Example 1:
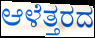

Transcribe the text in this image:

ಆಳೆತ್ತರದ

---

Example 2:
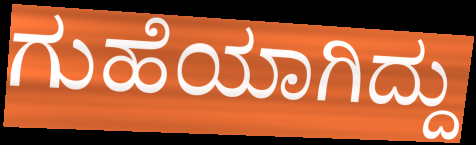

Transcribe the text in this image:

ಗುಹೆಯಾಗಿದ್ದು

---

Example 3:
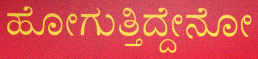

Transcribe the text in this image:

ಹೋಗುತ್ತಿದ್ದೇನೋ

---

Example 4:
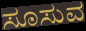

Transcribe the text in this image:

ಸೂಸುವ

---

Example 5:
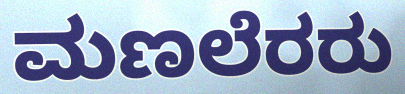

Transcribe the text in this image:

ಮಣಲೆರರು